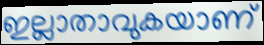
ഇല്ലാതാവുകയാണ്